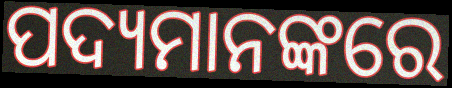
ପଦ୍ୟମାନଙ୍କରେ